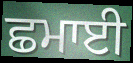
ਛਮਾਈ